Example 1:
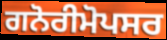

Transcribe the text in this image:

ਗਨੋਰੀਮੋਪਸਰ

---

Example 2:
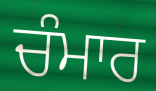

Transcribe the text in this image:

ਚੰਮਾਰ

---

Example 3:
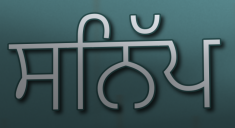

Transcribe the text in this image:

ਸਨਿੱਪ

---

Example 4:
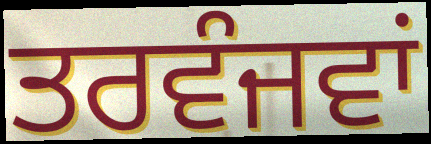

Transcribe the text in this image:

ਤਰਵੰਜਵਾਂ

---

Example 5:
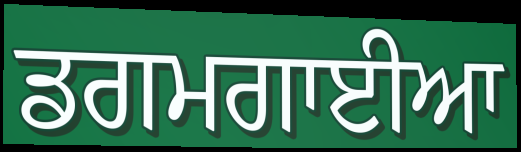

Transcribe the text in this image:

ਡਗਮਗਾਈਆ